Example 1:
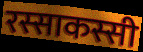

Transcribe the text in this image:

रस्साकस्सी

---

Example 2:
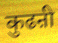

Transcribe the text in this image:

कुढऩी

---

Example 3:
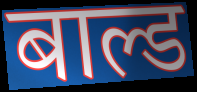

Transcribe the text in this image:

बाल्ड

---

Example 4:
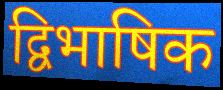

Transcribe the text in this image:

द्विभाषिक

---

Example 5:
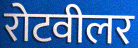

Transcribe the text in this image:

रोटवीलर